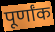
पूर्णांक